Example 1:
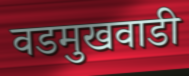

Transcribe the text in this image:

वडमुखवाडी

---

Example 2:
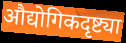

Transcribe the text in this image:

औद्योगिकदृष्ट्या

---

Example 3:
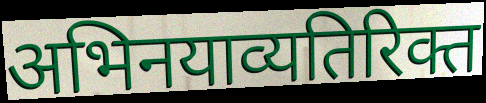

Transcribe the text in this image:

अभिनयाव्यतिरिक्त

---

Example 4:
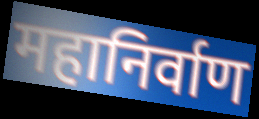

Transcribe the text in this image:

महानिर्वाण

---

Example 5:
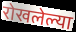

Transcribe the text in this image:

रोखलेल्या